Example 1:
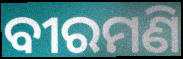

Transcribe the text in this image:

ବୀରମଣି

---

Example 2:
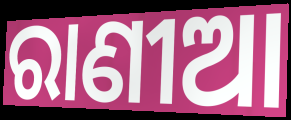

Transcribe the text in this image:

ରାଣୀଆ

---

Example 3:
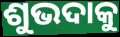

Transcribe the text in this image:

ଶୁଭଦାକୁ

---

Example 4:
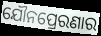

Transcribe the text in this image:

ଯୌନପ୍ରେରଣାର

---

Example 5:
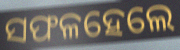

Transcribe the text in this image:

ସଫଳହେଲେ